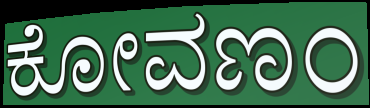
ಕೋವಣಂ